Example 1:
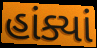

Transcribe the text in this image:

હાંક્યાં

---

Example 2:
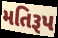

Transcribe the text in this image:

મતિરૂપ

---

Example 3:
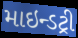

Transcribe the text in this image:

માઇન્ડટ્રી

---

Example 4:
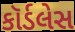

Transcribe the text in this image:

કૉર્ડલેસ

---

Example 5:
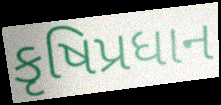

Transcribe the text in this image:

કૃષિપ્રધાન